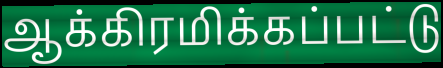
ஆக்கிரமிக்கப்பட்டு